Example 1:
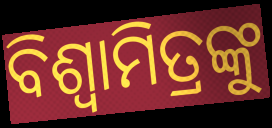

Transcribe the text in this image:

ବିଶ୍ଵାମିତ୍ରଙ୍କୁ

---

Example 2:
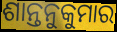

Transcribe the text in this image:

ଶାନ୍ତନୁକୁମାର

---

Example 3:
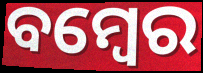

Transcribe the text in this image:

ବମ୍ବେର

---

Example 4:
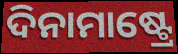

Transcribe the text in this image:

ଦିନାମାଷ୍ଟ୍ରେ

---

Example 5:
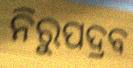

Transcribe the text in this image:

ନିରୁପଦ୍ରବ